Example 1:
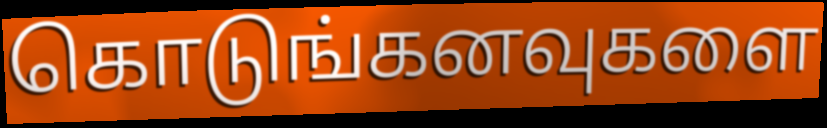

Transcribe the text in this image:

கொடுங்கனவுகளை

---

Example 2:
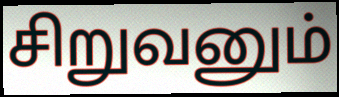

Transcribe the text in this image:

சிறுவனும்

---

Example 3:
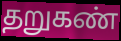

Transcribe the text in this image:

தறுகண்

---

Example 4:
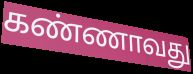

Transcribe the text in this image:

கண்ணாவது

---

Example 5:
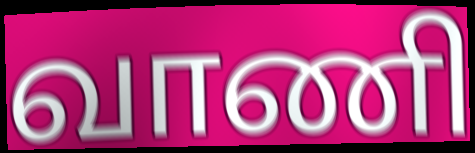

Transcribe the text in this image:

வாணி